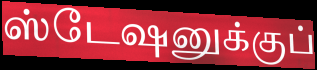
ஸ்டேஷனுக்குப்